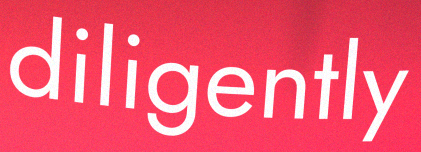
diligently